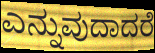
ಎನ್ನುವುದಾದರೆ